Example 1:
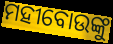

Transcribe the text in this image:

ମହୀବୋଉଙ୍କୁ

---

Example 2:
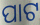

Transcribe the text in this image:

ପାଟ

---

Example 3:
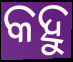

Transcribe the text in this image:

କହୁ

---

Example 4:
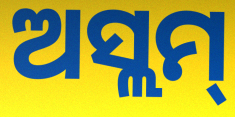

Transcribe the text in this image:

ଅସ୍ଲମ୍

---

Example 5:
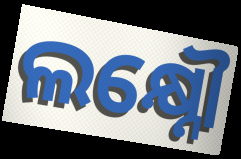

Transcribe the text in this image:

ଲକ୍ଷ୍ନୌ